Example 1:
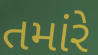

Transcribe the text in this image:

તમાંરે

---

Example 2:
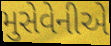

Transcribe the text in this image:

મુસેવેનીએ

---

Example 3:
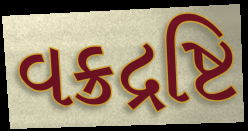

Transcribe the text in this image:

વક્રદ્રષ્ટિ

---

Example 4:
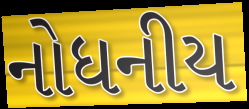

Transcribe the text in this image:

નોધનીય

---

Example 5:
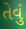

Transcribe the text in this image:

તેવું